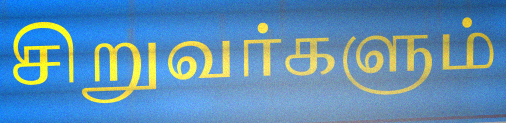
சிறுவர்களும்